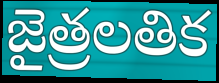
జైత్రలతిక